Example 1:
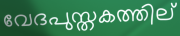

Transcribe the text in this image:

വേദപുസ്തകത്തില്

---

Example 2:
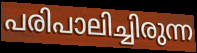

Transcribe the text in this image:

പരിപാലിച്ചിരുന്ന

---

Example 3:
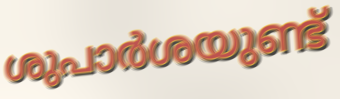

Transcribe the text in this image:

ശുപാർശയുണ്ട്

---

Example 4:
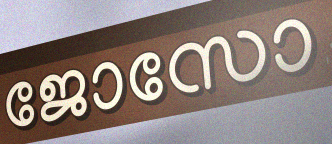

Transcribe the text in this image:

ജോസോ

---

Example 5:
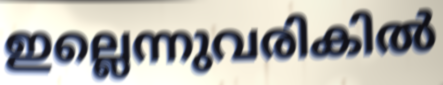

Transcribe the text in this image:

ഇല്ലെന്നുവരികിൽ